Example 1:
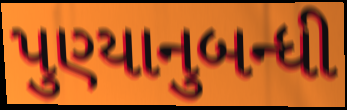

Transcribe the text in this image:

પુણ્યાનુબન્ધી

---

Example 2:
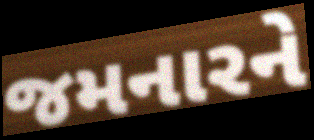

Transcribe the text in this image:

જમનારને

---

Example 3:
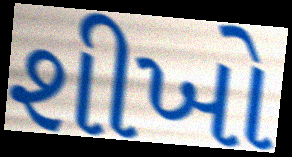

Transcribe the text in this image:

શીખો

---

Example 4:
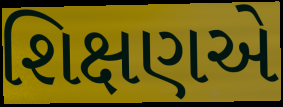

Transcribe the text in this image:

શિક્ષણએ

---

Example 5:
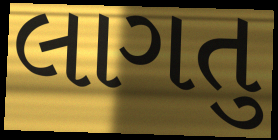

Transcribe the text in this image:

લાગતુ